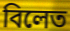
বিলেত